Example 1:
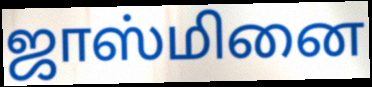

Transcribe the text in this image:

ஜாஸ்மினை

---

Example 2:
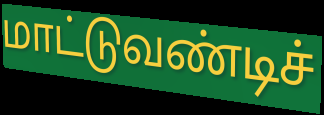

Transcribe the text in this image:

மாட்டுவண்டிச்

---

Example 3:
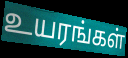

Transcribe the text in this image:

உயரங்கள்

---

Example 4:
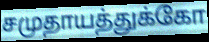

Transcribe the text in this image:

சமுதாயத்துக்கோ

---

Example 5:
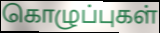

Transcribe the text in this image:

கொழுப்புகள்